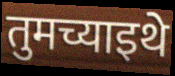
तुमच्याइथे